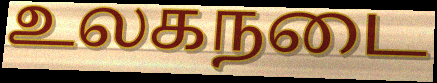
உலகநடை